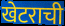
खेटराची